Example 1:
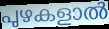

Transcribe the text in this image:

പുഴകളാൽ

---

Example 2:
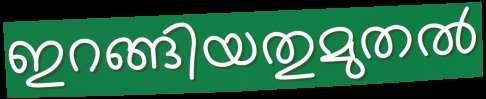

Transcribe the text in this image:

ഇറങ്ങിയതുമുതൽ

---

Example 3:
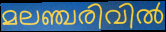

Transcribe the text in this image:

മലഞ്ചരിവിൽ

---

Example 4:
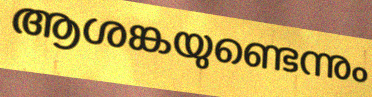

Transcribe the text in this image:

ആശങ്കയുണ്ടെന്നും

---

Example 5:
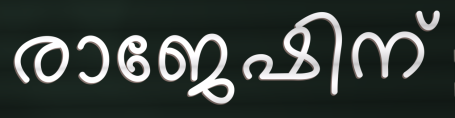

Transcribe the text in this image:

രാജേഷിന്